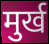
मुर्ख